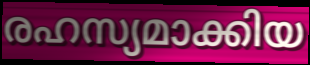
രഹസ്യമാക്കിയ